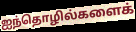
ஐந்தொழில்களைக்